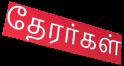
தேரர்கள்